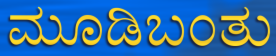
ಮೂಡಿಬಂತು